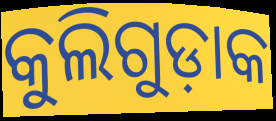
କୁଲିଗୁଡ଼ାକ